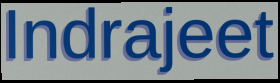
Indrajeet